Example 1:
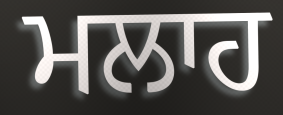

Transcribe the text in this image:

ਮਲਾਹ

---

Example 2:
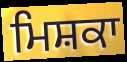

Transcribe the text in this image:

ਮਿਸ਼ਕਾ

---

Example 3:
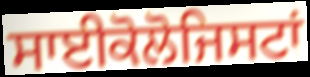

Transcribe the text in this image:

ਸਾਈਕੋਲੋਜਿਸਟਾਂ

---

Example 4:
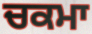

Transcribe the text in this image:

ਚਕਮਾ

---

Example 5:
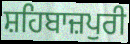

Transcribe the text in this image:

ਸ਼ਹਿਬਾਜ਼ਪੁਰੀ